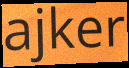
ajker